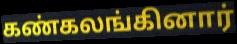
கண்கலங்கினார்